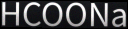
HCOONa